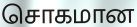
சொகமான